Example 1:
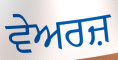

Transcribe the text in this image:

ਵੇਅਰਜ਼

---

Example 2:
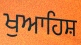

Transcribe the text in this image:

ਖੁਆਹਿਸ਼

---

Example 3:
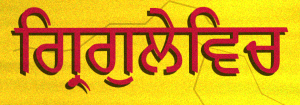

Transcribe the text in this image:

ਗ੍ਰਿਗੁਲੇਵਿਚ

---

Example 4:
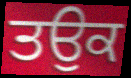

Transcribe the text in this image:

ਤਉਕ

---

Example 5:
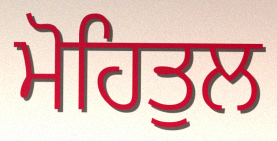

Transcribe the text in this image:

ਮੋਹਿਤੁਲ